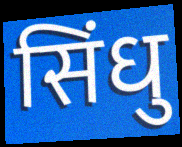
सिंधु